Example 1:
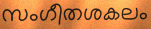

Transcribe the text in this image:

സംഗീതശകലം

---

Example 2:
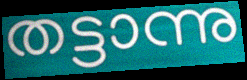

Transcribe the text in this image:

തട്ടാന്നു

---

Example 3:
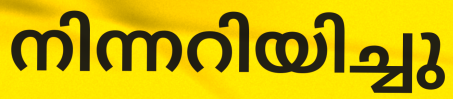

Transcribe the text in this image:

നിന്നറിയിച്ചു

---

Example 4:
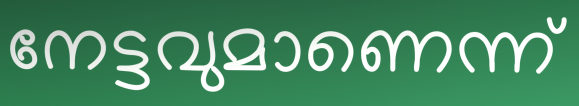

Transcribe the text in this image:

നേട്ടവുമാണെന്ന്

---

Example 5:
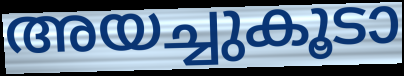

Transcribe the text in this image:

അയച്ചുകൂടാ